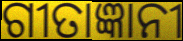
ଗୀତାଜ୍ଞାନୀ